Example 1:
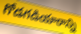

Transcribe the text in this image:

గోడగడియారాన్ని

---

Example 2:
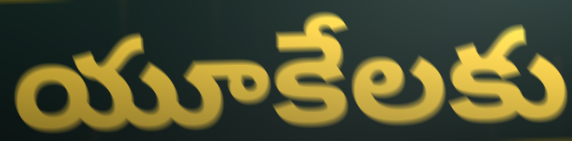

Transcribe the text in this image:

యూకేలకు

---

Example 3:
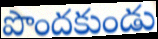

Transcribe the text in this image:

పొందకుండు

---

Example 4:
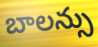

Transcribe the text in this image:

బాలన్సు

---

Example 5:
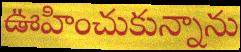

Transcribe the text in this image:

ఊహించుకున్నాను